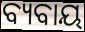
ବ୍ୟବାୟ